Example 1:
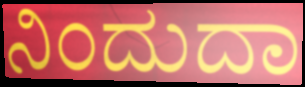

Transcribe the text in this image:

ನಿಂದುದಾ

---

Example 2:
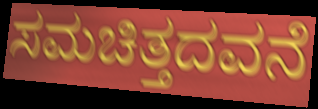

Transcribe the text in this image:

ಸಮಚಿತ್ತದವನೆ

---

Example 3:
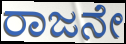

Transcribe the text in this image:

ರಾಜನೇ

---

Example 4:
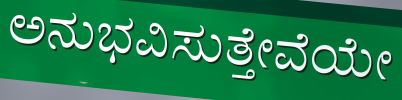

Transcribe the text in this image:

ಅನುಭವಿಸುತ್ತೇವೆಯೇ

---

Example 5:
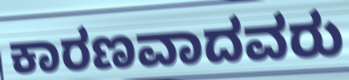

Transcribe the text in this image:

ಕಾರಣವಾದವರು